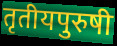
तृतीयपुरुषी